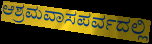
ಆಶ್ರಮವಾಸಪರ್ವದಲ್ಲಿ